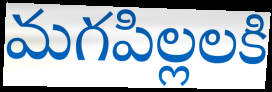
మగపిల్లలకి